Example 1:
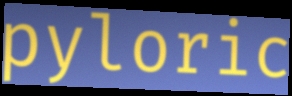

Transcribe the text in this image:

pyloric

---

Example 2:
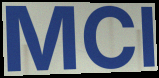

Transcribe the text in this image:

MCl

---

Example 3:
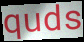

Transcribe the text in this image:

quds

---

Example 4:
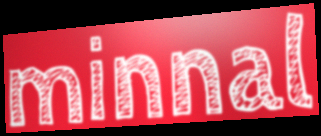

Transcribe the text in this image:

minnal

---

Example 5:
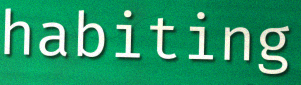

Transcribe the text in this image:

habiting